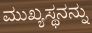
ಮುಖ್ಯಸ್ಥನನ್ನು